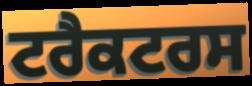
ਟਰੈਕਟਰਸ